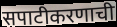
सपाटीकरणाची